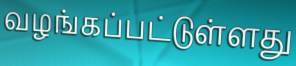
வழங்கப்பட்டுள்ளது